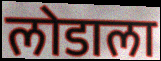
लोडाला